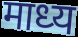
माध्‍य